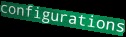
configurations